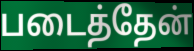
படைத்தேன்